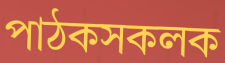
পাঠকসকলক